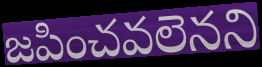
జపించవలెనని